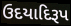
ઉદયાદિરૂપ